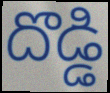
దొడ్డి